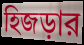
হিজড়ার